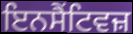
ਇਨਸੈਂਟਿਵਜ਼